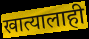
खात्यालाही